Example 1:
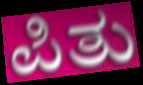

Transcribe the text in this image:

ಪಿತು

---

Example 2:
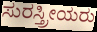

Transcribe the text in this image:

ಸುರಸ್ತ್ರೀಯರು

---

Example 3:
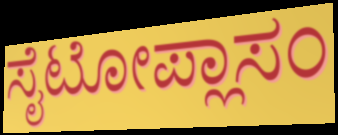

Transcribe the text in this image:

ಸೈಟೋಪ್ಲಾಸಂ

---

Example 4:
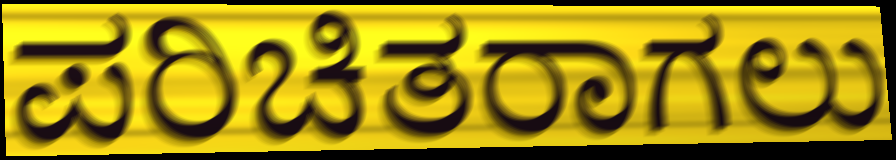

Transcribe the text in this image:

ಪರಿಚಿತರಾಗಲು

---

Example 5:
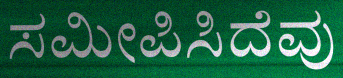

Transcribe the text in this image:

ಸಮೀಪಿಸಿದೆವು